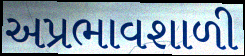
અપ્રભાવશાળી